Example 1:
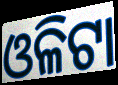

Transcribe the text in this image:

ଓଳିଟା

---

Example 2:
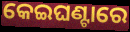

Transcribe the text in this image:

କେଇଘଣ୍ଟାରେ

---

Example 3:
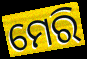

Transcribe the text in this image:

ମେରି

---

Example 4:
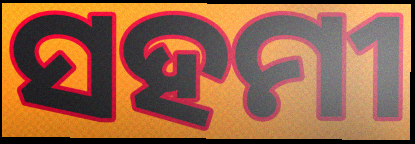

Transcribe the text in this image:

ସହମୀ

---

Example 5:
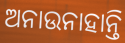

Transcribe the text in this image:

ଅନାଉନାହାନ୍ତି